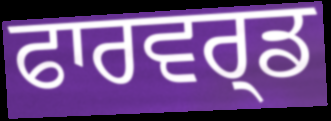
ਫਾਰਵਰ੍ਡ